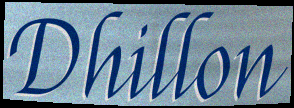
Dhillon